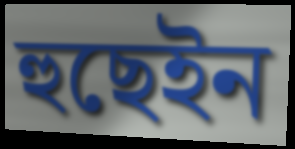
হুছেইন